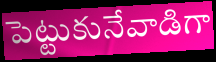
పెట్టుకునేవాడిగా